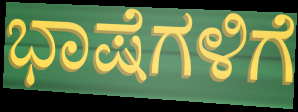
ಭಾಷೆಗಳಿಗೆ